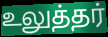
உலுத்தர்